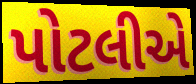
પોટલીએ